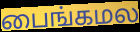
பைங்கமல